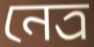
নেত্র